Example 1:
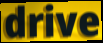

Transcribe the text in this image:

drive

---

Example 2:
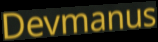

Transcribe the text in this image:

Devmanus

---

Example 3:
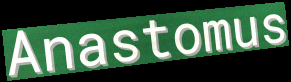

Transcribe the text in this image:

Anastomus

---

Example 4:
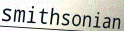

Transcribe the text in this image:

smithsonian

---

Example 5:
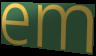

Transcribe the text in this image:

em